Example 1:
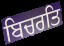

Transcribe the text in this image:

ਬਿਚਰਤਿ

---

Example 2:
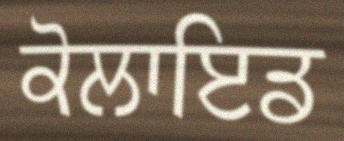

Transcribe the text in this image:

ਕੋਲਾਇਡ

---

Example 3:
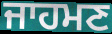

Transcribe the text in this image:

ਜਾਹਮਣ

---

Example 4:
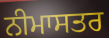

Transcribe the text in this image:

ਨੀਮਾਸਤਰ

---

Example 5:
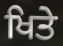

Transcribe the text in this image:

ਖਿਤੇ